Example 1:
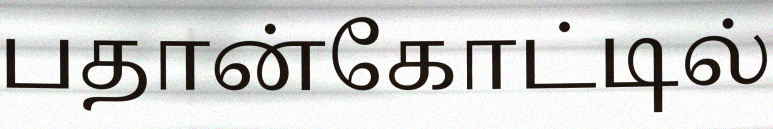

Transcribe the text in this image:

பதான்கோட்டில்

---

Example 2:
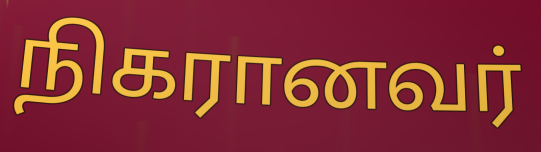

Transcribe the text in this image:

நிகரானவர்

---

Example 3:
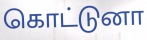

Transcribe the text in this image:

கொட்டுனா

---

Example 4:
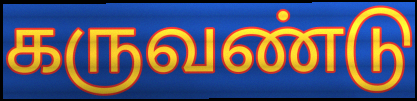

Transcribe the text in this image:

கருவண்டு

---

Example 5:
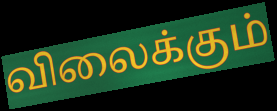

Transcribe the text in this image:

விலைக்கும்